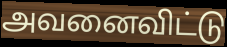
அவனைவிட்டு